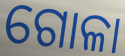
ଗୋଳା